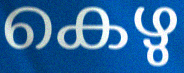
കെഴു